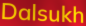
Dalsukh